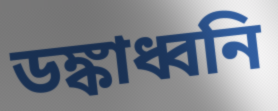
ডঙ্কাধ্বনি